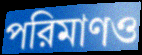
পরিমাণও